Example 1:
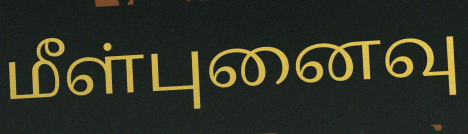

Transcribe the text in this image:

மீள்புனைவு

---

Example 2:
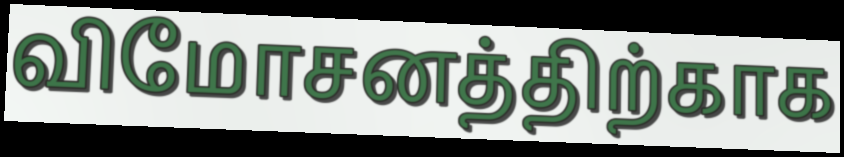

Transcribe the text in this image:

விமோசனத்திற்காக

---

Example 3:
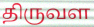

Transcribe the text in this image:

திருவள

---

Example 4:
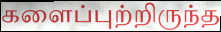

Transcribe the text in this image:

களைப்புற்றிருந்த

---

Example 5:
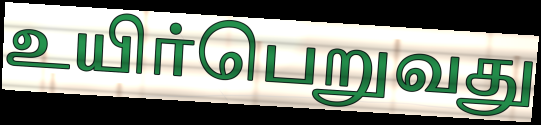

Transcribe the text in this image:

உயிர்பெறுவது